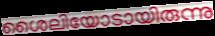
ശൈലിയോടായിരുന്നു